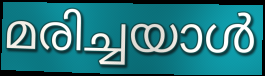
മരിച്ചയാൾ